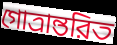
গোত্রান্তরিত